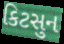
કિટસુન